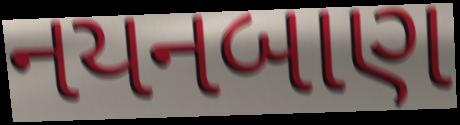
નયનબાણ